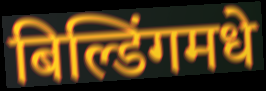
बिल्डिंगमधे